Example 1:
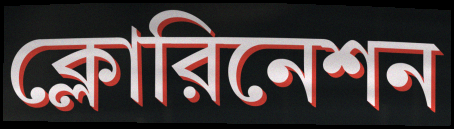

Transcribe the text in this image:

ক্লোরিনেশন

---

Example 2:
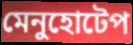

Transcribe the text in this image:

মেনুহোটেপ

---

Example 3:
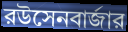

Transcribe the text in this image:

রউসেনবার্জার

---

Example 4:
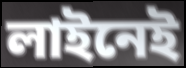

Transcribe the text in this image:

লাইনেই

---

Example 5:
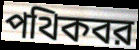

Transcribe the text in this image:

পথিকবর